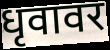
धृवावर